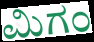
ಮಿಗಂ